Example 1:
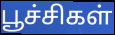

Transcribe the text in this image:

பூச்சிகள்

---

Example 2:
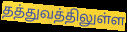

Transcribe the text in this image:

தத்துவத்திலுள்ள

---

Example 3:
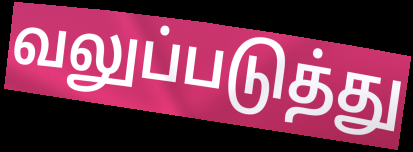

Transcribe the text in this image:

வலுப்படுத்து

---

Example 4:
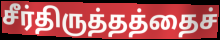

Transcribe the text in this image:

சீர்திருத்தத்தைச்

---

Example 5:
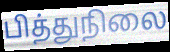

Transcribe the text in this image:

பித்துநிலை